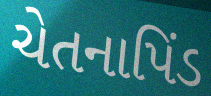
ચેતનાપિંડ